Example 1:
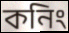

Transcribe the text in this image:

কনিং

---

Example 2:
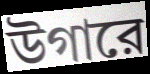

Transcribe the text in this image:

উগারে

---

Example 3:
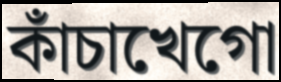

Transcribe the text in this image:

কাঁচাখেগো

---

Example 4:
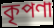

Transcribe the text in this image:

কৃপণা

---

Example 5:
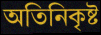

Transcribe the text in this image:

অতিনিকৃষ্ট